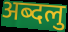
अब्दलु